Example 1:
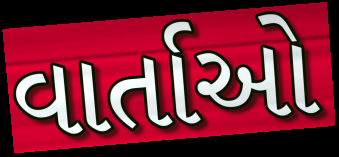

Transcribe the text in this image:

વાર્તાઓ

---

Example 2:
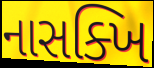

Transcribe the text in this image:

નાસક્ખિ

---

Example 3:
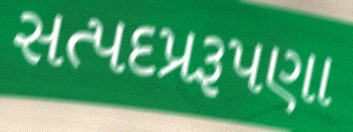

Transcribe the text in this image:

સત્પદપ્રરૂપણા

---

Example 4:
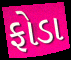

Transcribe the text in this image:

ફોડા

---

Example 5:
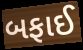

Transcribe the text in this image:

બફાઈ